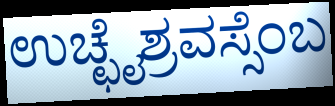
ಉಚ್ಛೈಶ್ರವಸ್ಸೆಂಬ